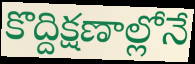
కొద్దిక్షణాల్లోనే